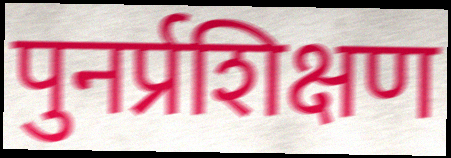
पुनर्प्रशिक्षण